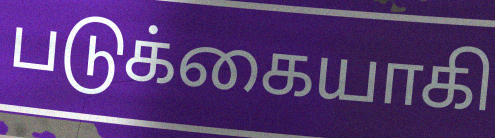
படுக்கையாகி